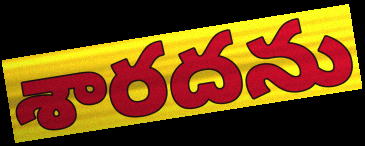
శారదను